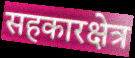
सहकारक्षेत्र